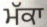
ਮੱਕਾ